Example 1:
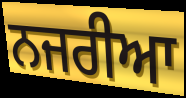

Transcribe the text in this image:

ਨਜਰੀਆ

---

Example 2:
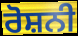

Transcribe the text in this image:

ਰੋਸ਼ਨੀ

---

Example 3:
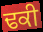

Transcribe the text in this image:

ਢਕੀ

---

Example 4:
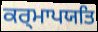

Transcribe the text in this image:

ਕਰ੍ਮਾਪਯਤਿ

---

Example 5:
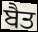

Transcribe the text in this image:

ਬੈਤ